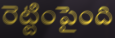
రెట్టింపైంది